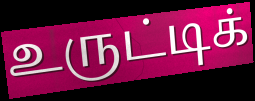
உருட்டிக்